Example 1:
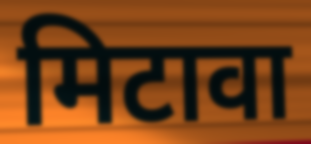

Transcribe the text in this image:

मिटावा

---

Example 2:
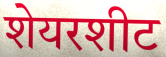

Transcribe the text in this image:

शेयरशीट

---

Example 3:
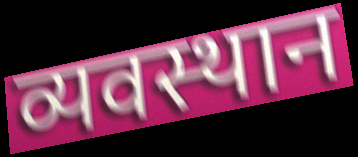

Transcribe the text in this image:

व्यवस्थान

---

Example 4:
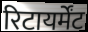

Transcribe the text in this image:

रिटायर्मेंट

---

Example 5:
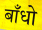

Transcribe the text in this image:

बाँधो